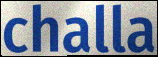
challa